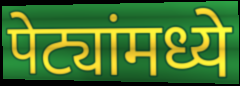
पेट्यांमध्ये